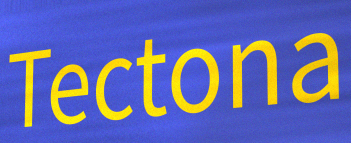
Tectona